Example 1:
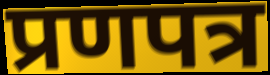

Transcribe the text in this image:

प्रणपत्र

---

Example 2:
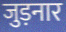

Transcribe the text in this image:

जुड़नार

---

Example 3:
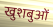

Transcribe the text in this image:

खुशबुओं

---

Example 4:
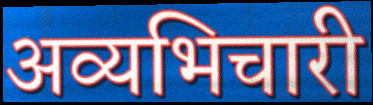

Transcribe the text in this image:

अव्यभिचारी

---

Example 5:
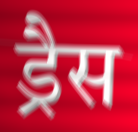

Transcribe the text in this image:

ड्रैस